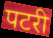
पटरी